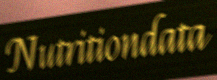
Nutritiondata